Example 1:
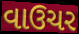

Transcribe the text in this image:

વાઉચર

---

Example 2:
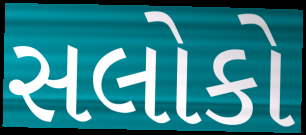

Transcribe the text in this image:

સલોકો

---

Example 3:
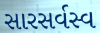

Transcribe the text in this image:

સારસર્વસ્વ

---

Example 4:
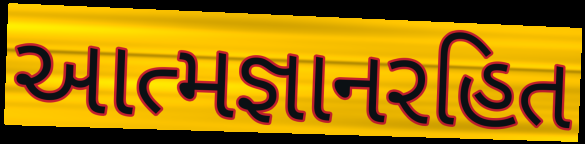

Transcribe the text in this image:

આત્મજ્ઞાનરહિત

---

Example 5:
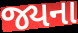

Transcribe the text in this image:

જ્યના